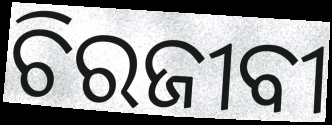
ଚିରଜୀବୀ